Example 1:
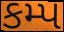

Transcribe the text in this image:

કમ્પ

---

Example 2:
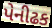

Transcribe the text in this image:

પેનીઢક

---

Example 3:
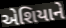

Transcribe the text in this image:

એશિયાને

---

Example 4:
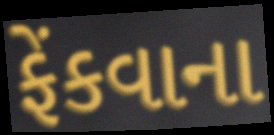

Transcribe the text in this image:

ફેંકવાના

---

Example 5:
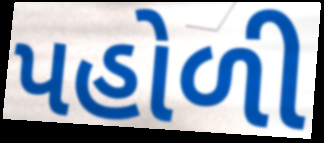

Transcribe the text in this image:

પહોળી